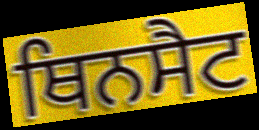
ਥਿਨਸੈਟ